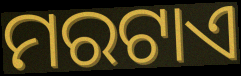
ମରଟାଏ